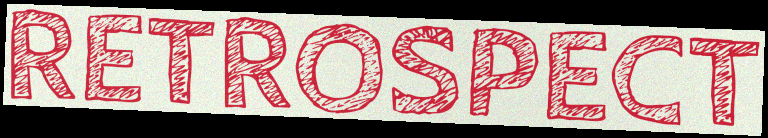
RETROSPECT